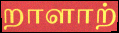
றாளாற்